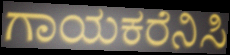
ಗಾಯಕರೆನಿಸಿ